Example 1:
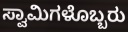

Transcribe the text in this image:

ಸ್ವಾಮಿಗಳೊಬ್ಬರು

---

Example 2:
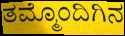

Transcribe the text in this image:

ತಮ್ಮೊಂದಿಗಿನ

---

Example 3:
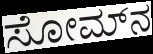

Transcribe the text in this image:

ಸೋಮ್‍ನ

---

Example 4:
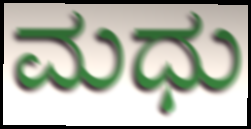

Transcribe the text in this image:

ಮಧು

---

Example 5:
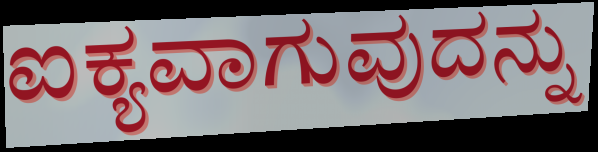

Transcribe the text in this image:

ಐಕ್ಯವಾಗುವುದನ್ನು